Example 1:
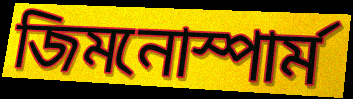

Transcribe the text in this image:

জিমনোস্পার্ম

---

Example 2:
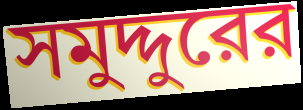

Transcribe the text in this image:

সমুদ্দুরের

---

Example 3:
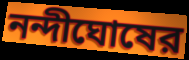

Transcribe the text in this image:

নন্দীঘোষের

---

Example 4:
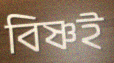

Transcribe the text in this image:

বিষ্ণই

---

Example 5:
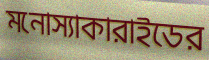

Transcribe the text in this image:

মনোস্যাকারাইডের